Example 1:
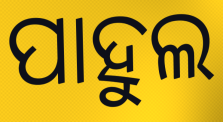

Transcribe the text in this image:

ପାହୁଲ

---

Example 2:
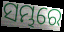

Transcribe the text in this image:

ସମ୍ଭରେ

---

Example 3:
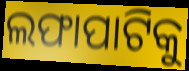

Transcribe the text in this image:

ଲଫାପାଟିକୁ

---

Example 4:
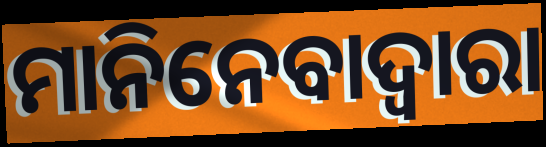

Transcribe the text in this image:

ମାନିନେବାଦ୍ୱାରା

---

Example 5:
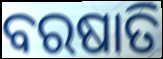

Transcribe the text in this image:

ବରଷାତି